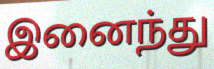
இனைந்து